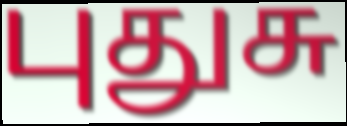
புதுசு